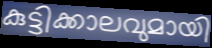
കുട്ടിക്കാലവുമായി